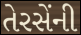
તેરસેંની